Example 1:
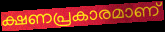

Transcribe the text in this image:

ക്ഷണപ്രകാരമാണ്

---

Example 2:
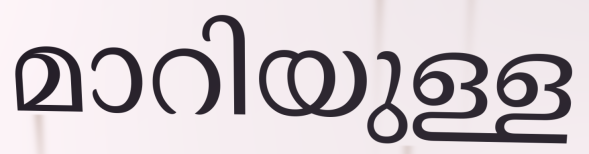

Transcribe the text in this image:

മാറിയുള്ള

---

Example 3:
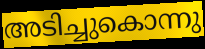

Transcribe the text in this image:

അടിച്ചുകൊന്നു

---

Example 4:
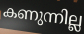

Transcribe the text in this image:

കണുന്നില്ല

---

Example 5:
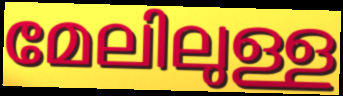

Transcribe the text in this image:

മേലിലുള്ള